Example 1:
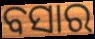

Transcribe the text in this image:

ବସାର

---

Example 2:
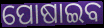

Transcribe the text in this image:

ପୋଷାଇବ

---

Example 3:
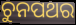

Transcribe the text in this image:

ଚୁନପଥର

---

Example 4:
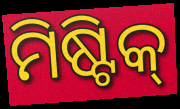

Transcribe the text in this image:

ମିଷ୍ଟିକ୍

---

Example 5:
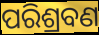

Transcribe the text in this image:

ପରିଶ୍ରବଣ